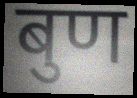
बुण